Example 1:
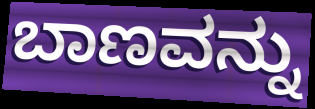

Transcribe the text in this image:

ಬಾಣವನ್ನು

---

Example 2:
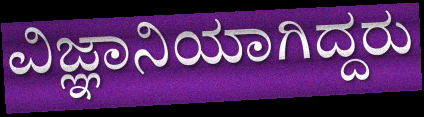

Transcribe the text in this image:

ವಿಜ್ಞಾನಿಯಾಗಿದ್ದರು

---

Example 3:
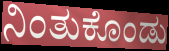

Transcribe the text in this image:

ನಿಂತುಕೊಂಡು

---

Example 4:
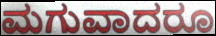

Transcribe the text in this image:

ಮಗುವಾದರೂ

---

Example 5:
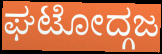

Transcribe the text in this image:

ಘಟೋದ್ಗಜ